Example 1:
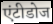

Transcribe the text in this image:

एंटीडोज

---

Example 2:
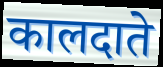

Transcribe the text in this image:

कालदाते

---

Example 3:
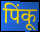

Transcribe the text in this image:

पिंकू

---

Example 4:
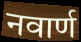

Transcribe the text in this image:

नवार्ण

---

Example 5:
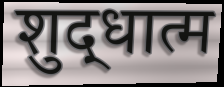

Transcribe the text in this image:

शुद्धात्म